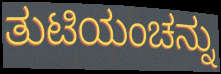
ತುಟಿಯಂಚನ್ನು